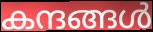
കന്ദങ്ങൾ